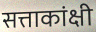
सत्ताकांक्षी